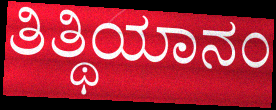
ತಿತ್ಥಿಯಾನಂ